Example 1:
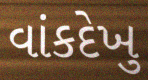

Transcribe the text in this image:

વાંકદેખુ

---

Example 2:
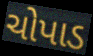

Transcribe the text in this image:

ચોપાડ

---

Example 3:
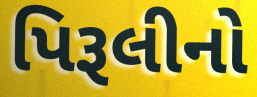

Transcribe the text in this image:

પિરૂલીનો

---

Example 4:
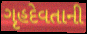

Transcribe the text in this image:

ગૃહદેવતાની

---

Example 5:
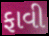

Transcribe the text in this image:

ફાવી